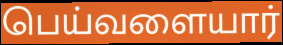
பெய்வளையார்